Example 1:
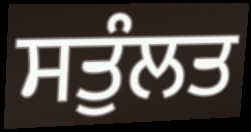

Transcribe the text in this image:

ਸਤੁੰਲਤ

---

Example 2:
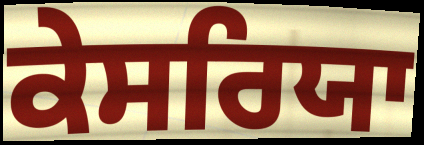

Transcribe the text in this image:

ਕੇਸਰਿਯਾ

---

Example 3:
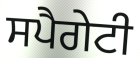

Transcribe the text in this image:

ਸਪੈਗੇਟੀ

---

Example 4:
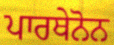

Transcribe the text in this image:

ਪਾਰਥੇਨੋਨ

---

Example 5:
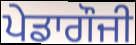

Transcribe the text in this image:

ਪੇਡਾਗੌਜੀ